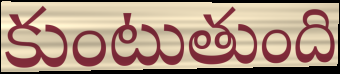
కుంటుతుంది